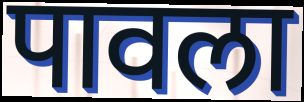
पावला